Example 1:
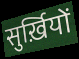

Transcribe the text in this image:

सुर्ख़ियों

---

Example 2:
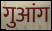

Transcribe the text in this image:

गुआंग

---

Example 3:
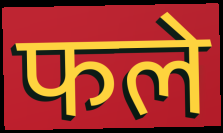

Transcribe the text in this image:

फले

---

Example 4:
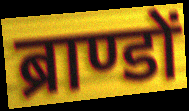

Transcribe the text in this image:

ब्राण्डों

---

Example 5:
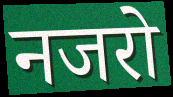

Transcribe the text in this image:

नजरो